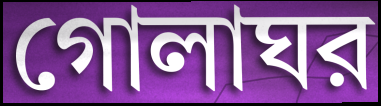
গোলাঘর